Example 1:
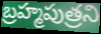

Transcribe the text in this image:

బ్రహ్మపుత్రని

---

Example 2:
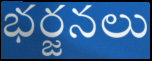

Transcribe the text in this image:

భర్జనలు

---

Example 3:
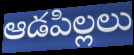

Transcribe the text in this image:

ఆడపిల్లలు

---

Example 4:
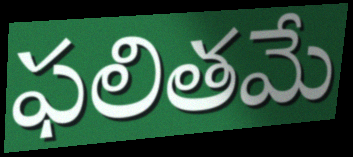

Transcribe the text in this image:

ఫలితమే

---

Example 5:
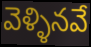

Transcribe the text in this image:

వెళ్ళినవే